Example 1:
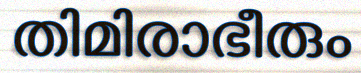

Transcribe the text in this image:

തിമിരാഭീരും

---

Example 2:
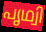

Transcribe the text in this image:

പൃഥ്വി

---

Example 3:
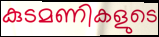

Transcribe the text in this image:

കുടമണികളുടെ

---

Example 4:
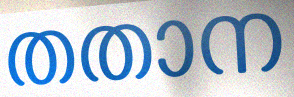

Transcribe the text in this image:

തതാന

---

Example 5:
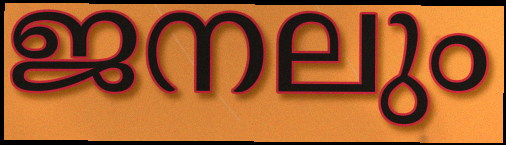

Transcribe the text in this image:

ജനലും